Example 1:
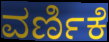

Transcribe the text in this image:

ವರ್ಣಿಕೆ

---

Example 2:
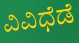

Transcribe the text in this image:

ವಿವಿಧೆಡೆ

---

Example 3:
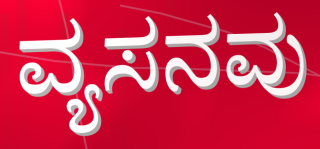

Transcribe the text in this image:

ವ್ಯಸನವು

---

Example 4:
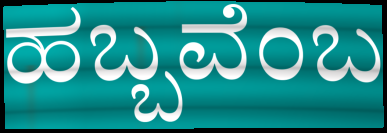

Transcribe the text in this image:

ಹಬ್ಬವೆಂಬ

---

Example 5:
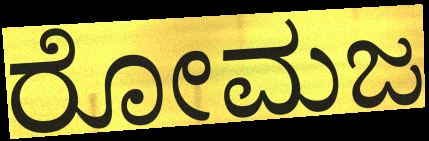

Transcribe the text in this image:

ರೋಮಜ